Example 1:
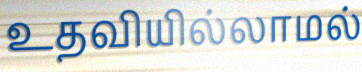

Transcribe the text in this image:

உதவியில்லாமல்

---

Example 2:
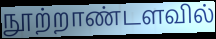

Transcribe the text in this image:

நூற்றாண்டளவில்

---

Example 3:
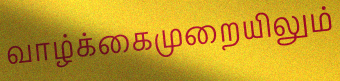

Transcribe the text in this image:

வாழ்க்கைமுறையிலும்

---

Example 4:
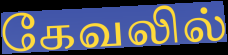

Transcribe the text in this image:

கேவலில்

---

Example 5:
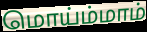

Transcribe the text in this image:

மொய்ம்மாம்